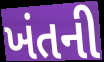
ખંતની